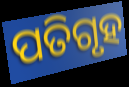
ପତିଗୃହ